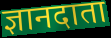
ज्ञानदाता